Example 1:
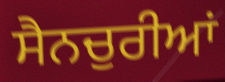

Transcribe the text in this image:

ਸੈਨਚੁਰੀਆਂ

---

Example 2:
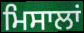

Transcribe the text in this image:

ਮਿਸਾਲਾਂ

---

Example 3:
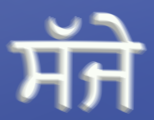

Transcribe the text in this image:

ਸੱਜੇ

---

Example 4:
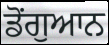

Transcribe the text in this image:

ਡੋਂਗੁਆਨ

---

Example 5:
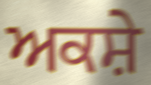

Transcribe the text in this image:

ਅਕਸ਼ੇ